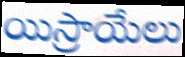
యిస్రాయేలు